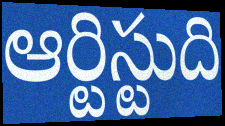
ఆర్టిస్టుది